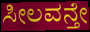
ಸೀಲವನ್ತೇ